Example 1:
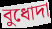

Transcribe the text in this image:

বুধোদা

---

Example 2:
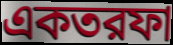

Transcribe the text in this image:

একতরফা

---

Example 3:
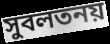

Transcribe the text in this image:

সুবলতনয়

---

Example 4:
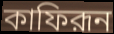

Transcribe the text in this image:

কাফিরূন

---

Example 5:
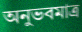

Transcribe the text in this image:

অনুভবমাত্র